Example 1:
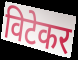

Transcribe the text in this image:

विटेकर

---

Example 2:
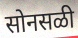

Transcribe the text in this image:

सोनसळी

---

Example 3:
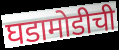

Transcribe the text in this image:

घडामोडीची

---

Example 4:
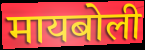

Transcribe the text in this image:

मायबोली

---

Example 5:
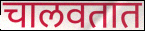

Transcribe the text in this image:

चालवतात